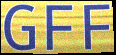
GFF